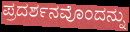
ಪ್ರದರ್ಶನವೊಂದನ್ನು